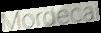
Mordecai